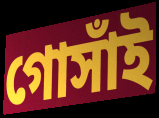
গোসাঁই